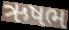
ઋષભ